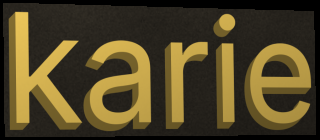
karie